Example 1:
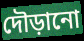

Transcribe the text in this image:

দৌড়ানো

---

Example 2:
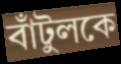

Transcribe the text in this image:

বাঁটুলকে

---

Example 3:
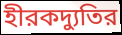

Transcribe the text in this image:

হীরকদ্যুতির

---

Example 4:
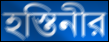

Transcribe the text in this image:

হস্তিনীর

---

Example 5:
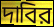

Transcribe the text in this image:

দাবির